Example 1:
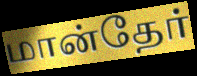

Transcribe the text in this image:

மான்தேர்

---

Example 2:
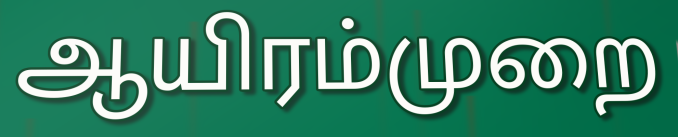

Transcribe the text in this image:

ஆயிரம்முறை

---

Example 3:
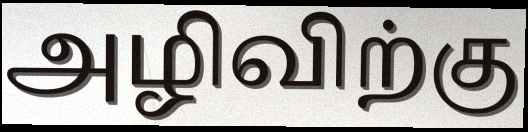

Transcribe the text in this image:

அழிவிற்கு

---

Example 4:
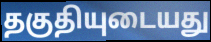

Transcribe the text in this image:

தகுதியுடையது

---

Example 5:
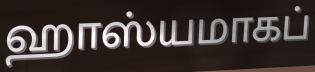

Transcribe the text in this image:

ஹாஸ்யமாகப்